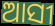
ଆସୀ